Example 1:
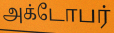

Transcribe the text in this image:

அக்டோபர்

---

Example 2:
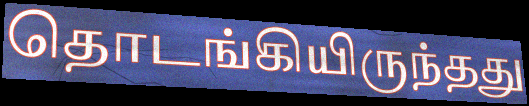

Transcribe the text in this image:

தொடங்கியிருந்தது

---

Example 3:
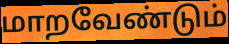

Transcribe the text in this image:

மாறவேண்டும்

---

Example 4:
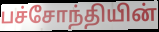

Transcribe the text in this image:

பச்சோந்தியின்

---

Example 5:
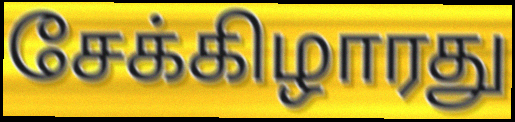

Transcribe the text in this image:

சேக்கிழாரது